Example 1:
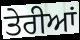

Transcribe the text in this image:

ਤੇਰੀਆਂ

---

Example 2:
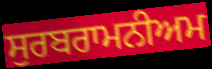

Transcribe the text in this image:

ਸੁਰਬਰਾਮਨੀਅਮ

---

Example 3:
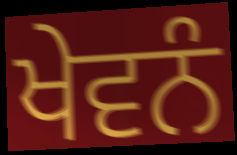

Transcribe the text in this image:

ਖੇਵਨੰ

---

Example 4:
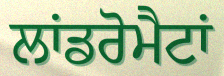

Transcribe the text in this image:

ਲਾਂਡਰੋਮੈਟਾਂ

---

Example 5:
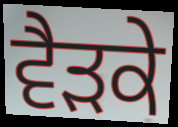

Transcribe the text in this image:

ਵੈੜਕੇ